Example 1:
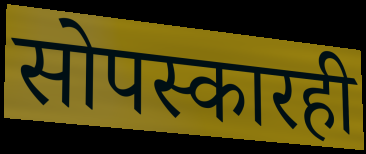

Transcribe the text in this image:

सोपस्कारही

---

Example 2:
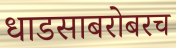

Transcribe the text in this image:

धाडसाबरोबरच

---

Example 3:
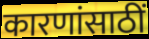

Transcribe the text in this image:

कारणांसाठीं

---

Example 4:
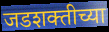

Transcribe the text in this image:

जडशक्तीच्या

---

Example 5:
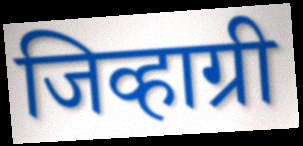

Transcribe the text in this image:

जिव्हाग्री